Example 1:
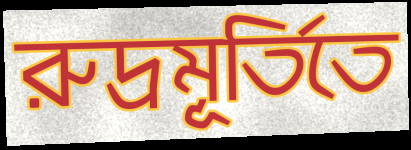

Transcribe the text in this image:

রুদ্রমূর্তিতে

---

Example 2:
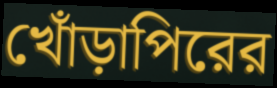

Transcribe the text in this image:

খোঁড়াপিরের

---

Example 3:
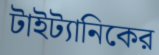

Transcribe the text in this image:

টাইট্যানিকের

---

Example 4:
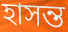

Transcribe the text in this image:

হাসন্ত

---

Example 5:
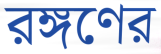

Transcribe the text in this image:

রঙ্গণের